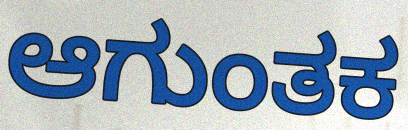
ಆಗುಂತಕ